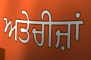
ਅਤੇਚੀਜ਼ਾਂ